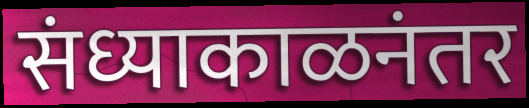
संध्याकाळनंतर